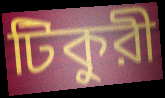
টিকুরী